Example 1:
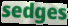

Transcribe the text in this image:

sedges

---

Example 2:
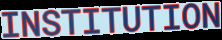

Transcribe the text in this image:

INSTITUTION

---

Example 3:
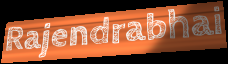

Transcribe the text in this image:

Rajendrabhai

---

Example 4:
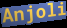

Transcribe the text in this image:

Anjoli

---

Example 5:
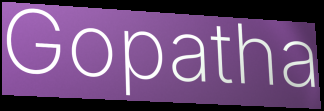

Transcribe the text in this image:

Gopatha